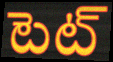
టెట్